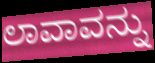
ಲಾವಾವನ್ನು